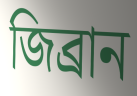
জিব্রান